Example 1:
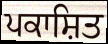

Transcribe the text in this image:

ਪਕਾਸ਼ਿਤ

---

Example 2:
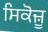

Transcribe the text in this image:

ਸਿਕੋਜ਼ੂ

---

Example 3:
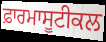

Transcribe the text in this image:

ਫ਼ਾਰਮਾਸੂਟੀਕਲ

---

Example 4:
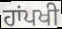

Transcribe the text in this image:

ਹਾਂਪਖੀ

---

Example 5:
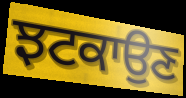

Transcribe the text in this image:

ਝਟਕਾਉਣ